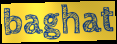
baghat